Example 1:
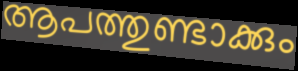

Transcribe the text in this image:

ആപത്തുണ്ടാക്കും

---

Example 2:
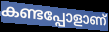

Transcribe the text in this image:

കണ്ടപ്പോളാണ്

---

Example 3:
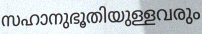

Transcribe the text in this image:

സഹാനുഭൂതിയുള്ളവരും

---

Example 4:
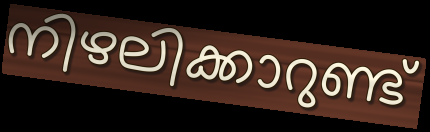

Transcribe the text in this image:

നിഴലിക്കാറുണ്ട്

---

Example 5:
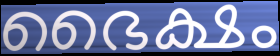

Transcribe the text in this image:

ഭൈക്ഷം